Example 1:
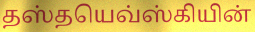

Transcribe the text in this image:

தஸ்தயெவ்ஸ்கியின்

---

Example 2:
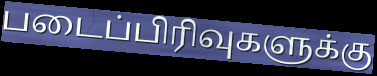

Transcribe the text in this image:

படைப்பிரிவுகளுக்கு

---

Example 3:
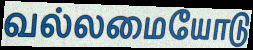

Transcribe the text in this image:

வல்லமையோடு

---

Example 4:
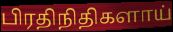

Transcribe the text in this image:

பிரதிநிதிகளாய்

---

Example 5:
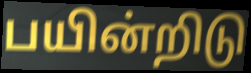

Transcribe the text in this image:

பயின்றிடு